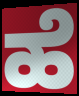
ಹೆ